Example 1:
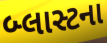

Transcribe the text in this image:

બ્લાસ્ટના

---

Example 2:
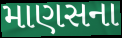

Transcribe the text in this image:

માણસના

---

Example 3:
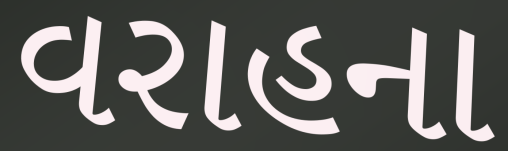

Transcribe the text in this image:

વરાહના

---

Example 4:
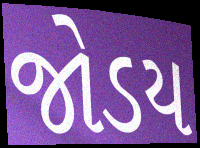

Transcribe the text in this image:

જોડય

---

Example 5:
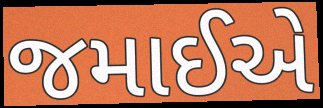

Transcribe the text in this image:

જમાઈએ